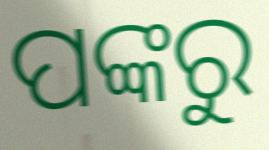
ପଙ୍କରୁ